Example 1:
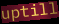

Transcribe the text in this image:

uptill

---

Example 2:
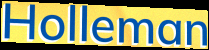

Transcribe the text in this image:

Holleman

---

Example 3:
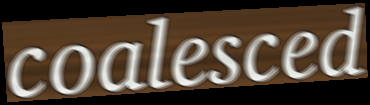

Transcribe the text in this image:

coalesced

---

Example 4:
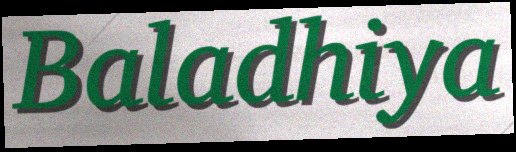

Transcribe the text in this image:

Baladhiya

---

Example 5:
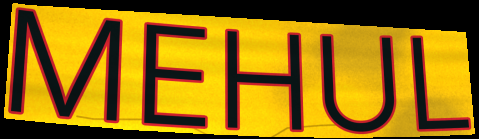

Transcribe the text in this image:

MEHUL